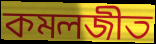
কমলজীত